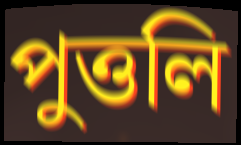
পুত্তলি